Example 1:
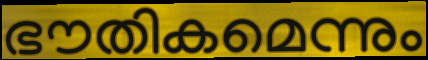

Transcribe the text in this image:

ഭൗതികമെന്നും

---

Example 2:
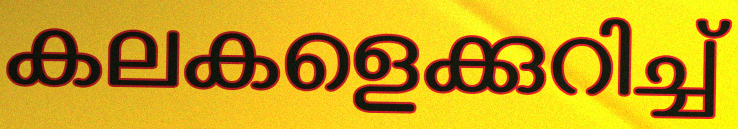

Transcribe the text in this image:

കലകളെക്കുറിച്ച്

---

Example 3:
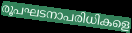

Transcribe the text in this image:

രൂപഘടനാപരിധികളെ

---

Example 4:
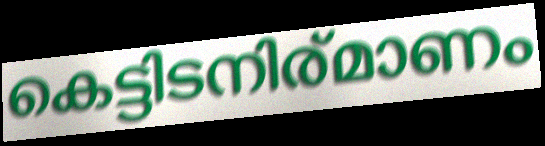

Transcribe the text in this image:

കെട്ടിടനിര്മാണം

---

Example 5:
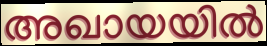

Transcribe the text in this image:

അഖായയിൽ